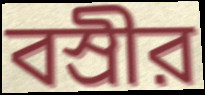
বস্রীর